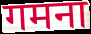
गमना